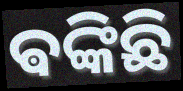
ଵଙ୍କିଛି